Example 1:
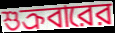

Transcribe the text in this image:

শুক্রবারের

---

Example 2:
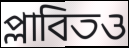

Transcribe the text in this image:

প্লাবিতও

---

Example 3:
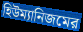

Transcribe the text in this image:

হিউম্যানিজমের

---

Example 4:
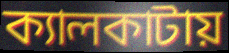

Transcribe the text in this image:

ক্যালকাটায়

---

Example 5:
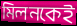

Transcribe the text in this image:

মিলনকেই